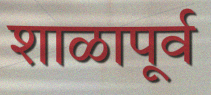
शाळापूर्व